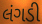
લંગડી